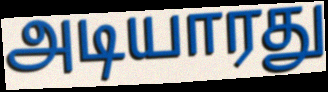
அடியாரது